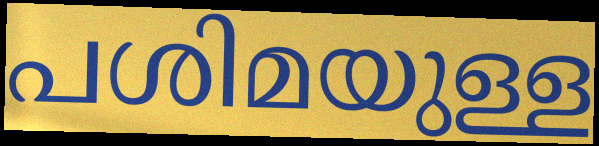
പശിമയുള്ള